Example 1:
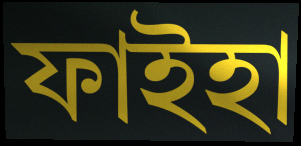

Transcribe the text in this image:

ফাইহা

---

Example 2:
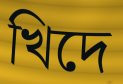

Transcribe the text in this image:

খিদে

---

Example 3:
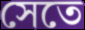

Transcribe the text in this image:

সেতে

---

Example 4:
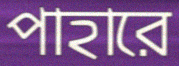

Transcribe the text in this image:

পাহারে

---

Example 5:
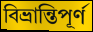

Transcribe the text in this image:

বিভ্রান্তিপূর্ণ